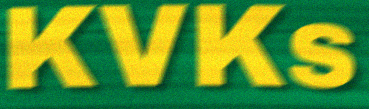
KVKs